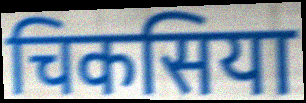
चिकसिया